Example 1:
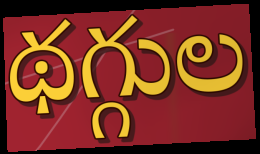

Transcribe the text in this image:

థగ్గుల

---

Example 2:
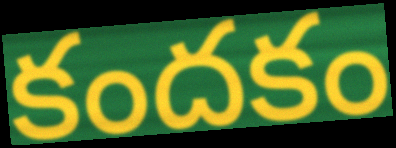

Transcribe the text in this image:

కందకం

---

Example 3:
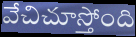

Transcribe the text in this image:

వేచిచూస్తోంది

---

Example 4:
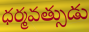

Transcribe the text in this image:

ధర్మవత్సుడు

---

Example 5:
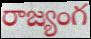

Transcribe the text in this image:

రాజ్యంగ